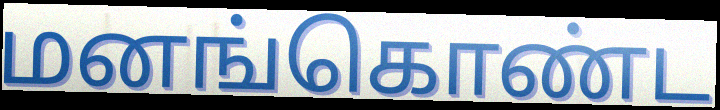
மனங்கொண்ட